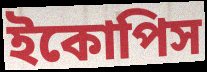
ইকোপিস